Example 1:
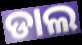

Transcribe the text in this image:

ଡାଲ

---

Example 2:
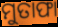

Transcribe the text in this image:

ମୁତାଫା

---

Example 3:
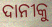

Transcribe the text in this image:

ଦାନୀକୁ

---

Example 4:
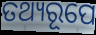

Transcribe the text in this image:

ତଥ୍ୟରୂପେ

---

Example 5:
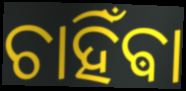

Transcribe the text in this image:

ଚାହିଁଵା